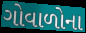
ગોવાળોના